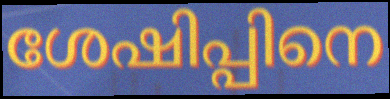
ശേഷിപ്പിനെ